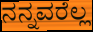
ನನ್ನವರೆಲ್ಲ